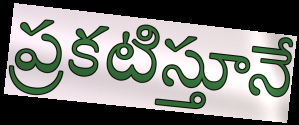
ప్రకటిస్తూనే